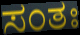
ಸಂತಃ